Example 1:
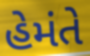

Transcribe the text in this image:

હેમંતે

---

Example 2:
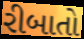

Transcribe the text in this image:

રીબાતો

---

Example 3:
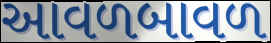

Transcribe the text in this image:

આવળબાવળ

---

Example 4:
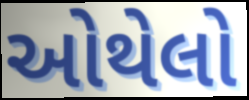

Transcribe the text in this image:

ઓથેલો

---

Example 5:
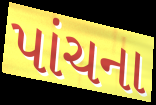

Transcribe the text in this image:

પાંચના